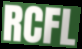
RCFL